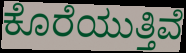
ಕೊರೆಯುತ್ತಿವೆ